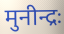
मुनीन्द्रः